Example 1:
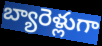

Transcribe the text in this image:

బ్యారెళ్లుగా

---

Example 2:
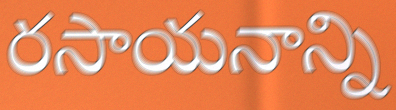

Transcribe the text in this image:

రసాయనాన్ని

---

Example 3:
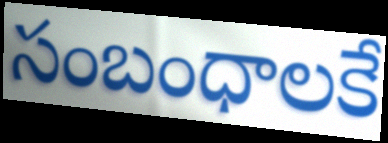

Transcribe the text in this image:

సంబంధాలకే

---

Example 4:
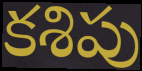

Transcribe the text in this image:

కశిపు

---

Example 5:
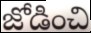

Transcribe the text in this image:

జోడించి